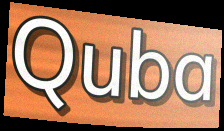
Quba